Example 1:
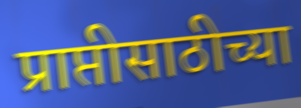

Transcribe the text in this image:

प्राप्तीसाठीच्या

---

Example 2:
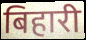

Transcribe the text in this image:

बिहारी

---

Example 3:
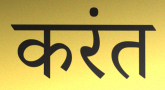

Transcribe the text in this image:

करंत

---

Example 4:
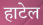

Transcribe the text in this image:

हाटेल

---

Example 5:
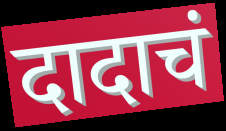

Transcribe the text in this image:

दादाचं